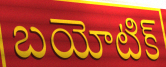
బయోటిక్